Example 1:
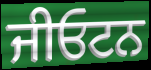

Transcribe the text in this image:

ਜੀਓਟਨ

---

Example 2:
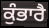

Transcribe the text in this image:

ਕੁੰਭਾਰੈ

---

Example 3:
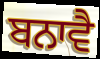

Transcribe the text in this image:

ਬਨਾਵੈ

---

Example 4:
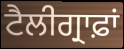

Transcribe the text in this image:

ਟੈਲੀਗ੍ਰਾਫ਼ਾਂ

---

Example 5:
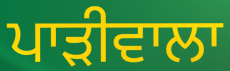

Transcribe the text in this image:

ਪਾੜੀਵਾਲਾ